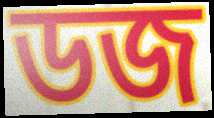
ডজ